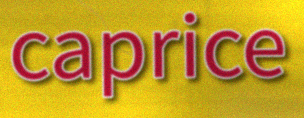
caprice